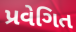
પ્રવેગિત